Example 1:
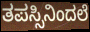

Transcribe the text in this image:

ತಪಸ್ಸಿನಿಂದಲೆ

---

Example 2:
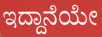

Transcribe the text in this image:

ಇದ್ದಾನೆಯೇ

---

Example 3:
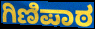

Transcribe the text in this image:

ಗಿಣಿಪಾಠ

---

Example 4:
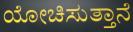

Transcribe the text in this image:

ಯೋಚಿಸುತ್ತಾನೆ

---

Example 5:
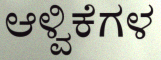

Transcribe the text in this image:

ಆಳ್ವಿಕೆಗಳ